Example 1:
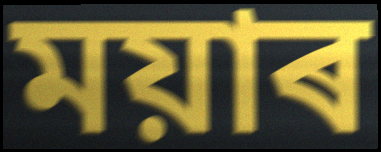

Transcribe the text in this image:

ময়াৰ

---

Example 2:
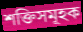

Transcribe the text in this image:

শক্তিসমূহক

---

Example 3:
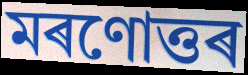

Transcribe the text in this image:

মৰণোত্তৰ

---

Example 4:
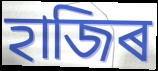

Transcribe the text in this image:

হাজিৰ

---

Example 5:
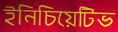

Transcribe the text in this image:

ইনিচিয়েটিভ